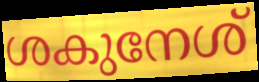
ശകുനേശ്